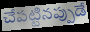
చేపట్టినప్పుడే